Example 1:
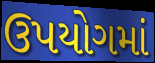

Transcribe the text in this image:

ઉપયોગમાં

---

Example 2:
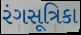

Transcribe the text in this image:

રંગસૂત્રિકા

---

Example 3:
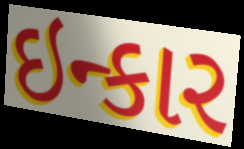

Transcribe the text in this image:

ઇન્કાર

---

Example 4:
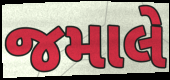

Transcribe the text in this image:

જમાલે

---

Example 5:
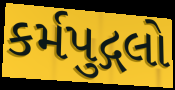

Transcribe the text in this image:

કર્મપુદ્ગલો